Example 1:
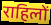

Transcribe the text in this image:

राहिलों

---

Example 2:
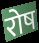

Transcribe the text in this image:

रोष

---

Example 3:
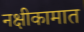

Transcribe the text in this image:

नक्षीकामात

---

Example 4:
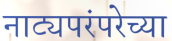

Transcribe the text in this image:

नाट्यपरंपरेच्या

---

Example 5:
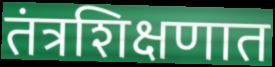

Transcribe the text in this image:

तंत्रशिक्षणात